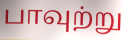
பாவுற்று